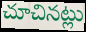
చూచినట్లు